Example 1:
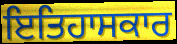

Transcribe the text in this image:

ਇਤਿਹਾਸਕਾਰ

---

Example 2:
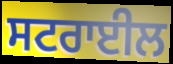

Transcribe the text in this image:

ਸਟਰਾਈਲ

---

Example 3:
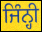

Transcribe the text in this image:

ਜਿੰਨ੍ਹੀ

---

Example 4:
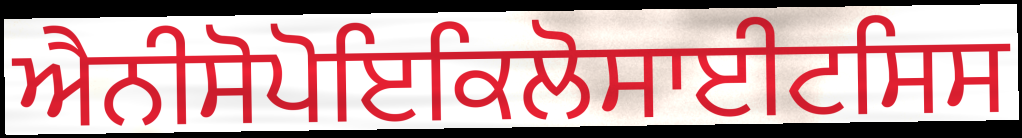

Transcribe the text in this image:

ਐਨੀਸੋਪੋਇਕਿਲੋਸਾਈਟਸਿਸ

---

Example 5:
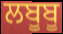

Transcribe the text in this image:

ਲਬੂਬੂ